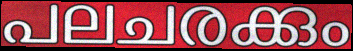
പലചരക്കും